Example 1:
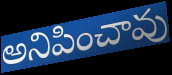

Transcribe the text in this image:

అనిపించావు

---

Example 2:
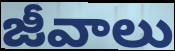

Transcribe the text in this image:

జీవాలు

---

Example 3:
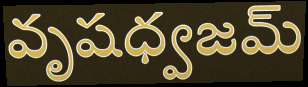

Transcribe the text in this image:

వృషధ్వజమ్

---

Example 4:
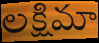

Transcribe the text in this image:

లక్షిమా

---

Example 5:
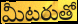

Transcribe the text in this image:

మీటరుతో